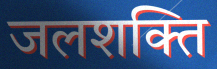
जलशक्ति